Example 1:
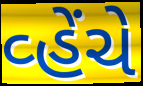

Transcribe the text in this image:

વ્હેંચે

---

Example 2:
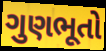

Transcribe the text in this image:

ગુણભૂતો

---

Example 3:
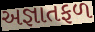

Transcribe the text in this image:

અજ્ઞાતફળ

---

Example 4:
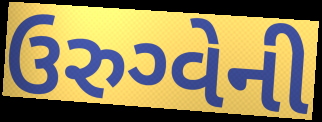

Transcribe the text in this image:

ઉરુગ્વેની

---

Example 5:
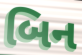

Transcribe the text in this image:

બિન